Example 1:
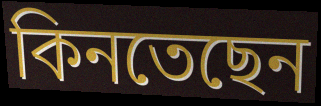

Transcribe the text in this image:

কিনতেছেন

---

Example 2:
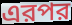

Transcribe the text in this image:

এরপর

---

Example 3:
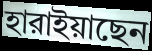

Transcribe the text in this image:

হারাইয়াছেন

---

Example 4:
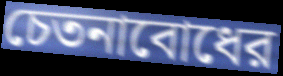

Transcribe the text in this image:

চেতনাবোধের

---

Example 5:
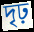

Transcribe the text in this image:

দৃঢ়